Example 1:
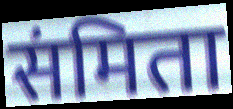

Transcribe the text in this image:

संमिता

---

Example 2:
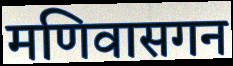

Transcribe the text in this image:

मणिवासगन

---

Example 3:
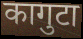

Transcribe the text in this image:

कागुटा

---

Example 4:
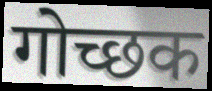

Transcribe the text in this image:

गोच्छक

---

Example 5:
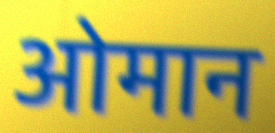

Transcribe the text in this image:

ओमान